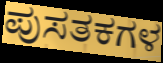
ಪುಸತಕಗಳ